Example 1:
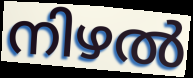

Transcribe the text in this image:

നിഴൽ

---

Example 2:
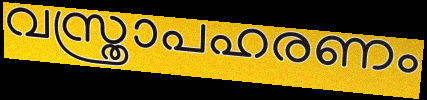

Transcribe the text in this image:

വസ്ത്രാപഹരണം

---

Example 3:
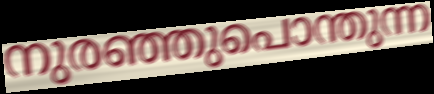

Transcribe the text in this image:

നുരഞ്ഞുപൊന്തുന്ന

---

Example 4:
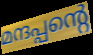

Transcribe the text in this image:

മന്ദപ്പന്റെ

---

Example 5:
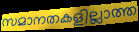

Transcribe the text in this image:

സമാനതകളില്ലാത്ത